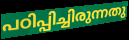
പഠിപ്പിച്ചിരുന്നതു